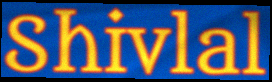
Shivlal